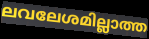
ലവലേശമില്ലാത്ത